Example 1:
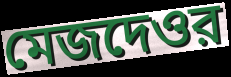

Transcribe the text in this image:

মেজদেওর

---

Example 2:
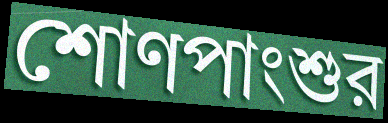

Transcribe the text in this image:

শোণপাংশুর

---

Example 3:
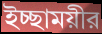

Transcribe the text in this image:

ইচ্ছাময়ীর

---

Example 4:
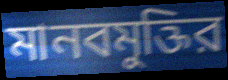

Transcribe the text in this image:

মানবমুক্তির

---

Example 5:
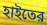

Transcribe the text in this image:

হাইতের